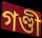
গণ্ডী